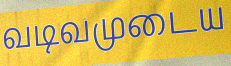
வடிவமுடைய